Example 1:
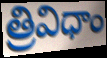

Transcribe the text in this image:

త్రివిధాం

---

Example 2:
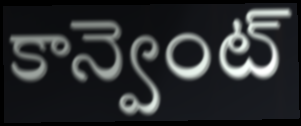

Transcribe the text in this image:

కాన్వెంట్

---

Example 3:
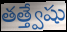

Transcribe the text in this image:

తత్త్వేషు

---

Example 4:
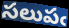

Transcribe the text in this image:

సలుపఁ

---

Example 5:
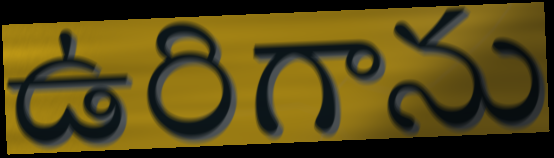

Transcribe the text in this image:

ఉరిగాను